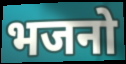
भजनो